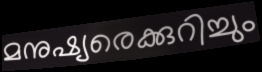
മനുഷ്യരെക്കുറിച്ചും